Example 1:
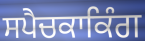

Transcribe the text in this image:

ਸਪੈਚਕਾਕਿੰਗ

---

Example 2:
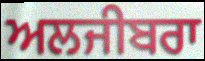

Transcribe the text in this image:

ਅਲਜੀਬਰਾ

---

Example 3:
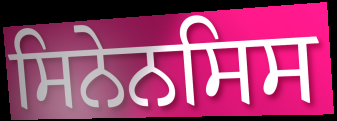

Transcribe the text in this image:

ਸਿਨੇਨਸਿਸ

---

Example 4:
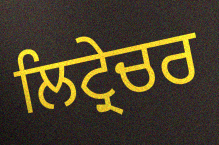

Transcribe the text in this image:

ਲਿਟ੍ਰੇਚਰ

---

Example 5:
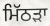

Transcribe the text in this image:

ਮਿੱਠੜਾ